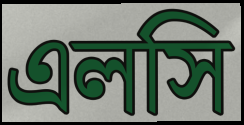
এলসি